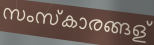
സംസ്കാരങ്ങള്